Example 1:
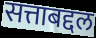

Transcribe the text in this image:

सत्ताबद्दल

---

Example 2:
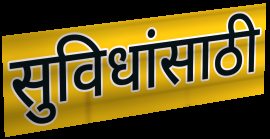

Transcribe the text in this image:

सुविधांसाठी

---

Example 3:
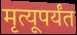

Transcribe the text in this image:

मृत्यूपर्यंत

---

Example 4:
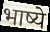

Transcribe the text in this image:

भाष्ये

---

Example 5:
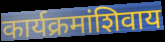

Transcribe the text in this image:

कार्यक्रमांशिवाय